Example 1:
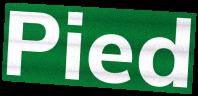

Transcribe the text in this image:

Pied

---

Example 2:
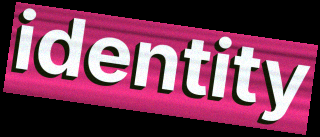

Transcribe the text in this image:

identity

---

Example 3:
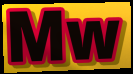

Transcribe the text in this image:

Mw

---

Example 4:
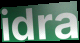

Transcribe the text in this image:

idra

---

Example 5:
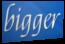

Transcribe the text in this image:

bigger